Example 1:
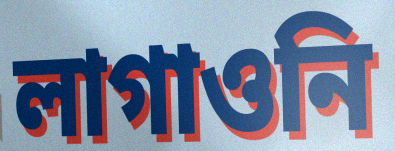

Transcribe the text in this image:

লাগাওনি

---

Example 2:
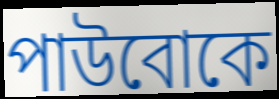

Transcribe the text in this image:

পাউবোকে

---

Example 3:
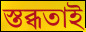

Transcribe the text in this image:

স্তব্ধতাই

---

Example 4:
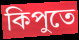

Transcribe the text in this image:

কিপুতে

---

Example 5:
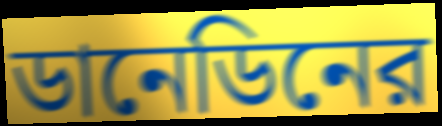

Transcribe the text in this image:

ডানেডিনের